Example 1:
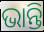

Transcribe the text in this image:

ଭାନ୍ତି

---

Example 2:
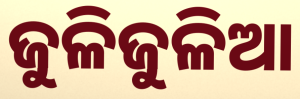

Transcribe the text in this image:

ଜୁଳିଜୁଳିଆ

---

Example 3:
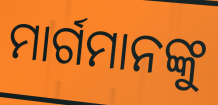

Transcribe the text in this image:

ମାର୍ଗମାନଙ୍କୁ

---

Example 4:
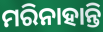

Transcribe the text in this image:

ମରିନାହାନ୍ତି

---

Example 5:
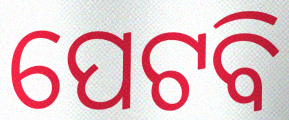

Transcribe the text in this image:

ପେଟବି